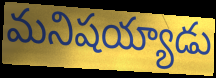
మనిషయ్యాడు